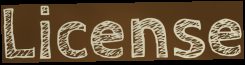
License